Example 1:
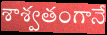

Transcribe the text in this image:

శాశ్వతంగానే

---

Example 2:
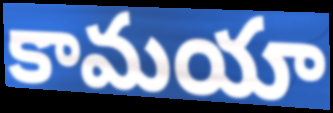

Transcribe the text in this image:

కామయా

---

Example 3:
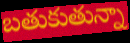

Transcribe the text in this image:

బతుకుతున్నా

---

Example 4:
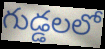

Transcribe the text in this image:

గుడ్డలలో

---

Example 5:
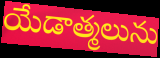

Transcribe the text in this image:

యేడాత్మలును